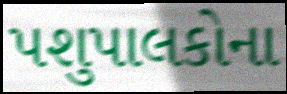
પશુપાલકોના